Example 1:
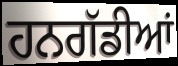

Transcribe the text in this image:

ਹਨਗੱਡੀਆਂ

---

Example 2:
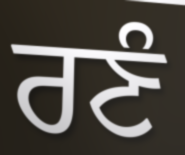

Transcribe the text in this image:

ਰਣੰ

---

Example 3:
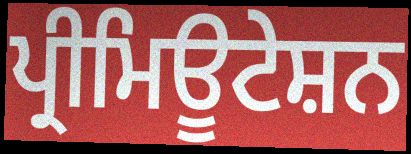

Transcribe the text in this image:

ਪ੍ਰੀਮਿਊਟੇਸ਼ਨ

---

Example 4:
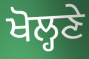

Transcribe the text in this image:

ਖੋਲ੍ਹਣੇ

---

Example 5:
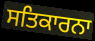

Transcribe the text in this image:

ਸਤਿਕਾਰਨਾ